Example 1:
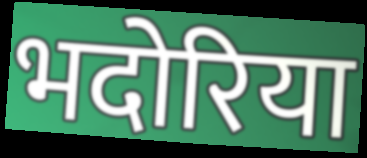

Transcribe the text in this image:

भदोरिया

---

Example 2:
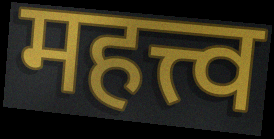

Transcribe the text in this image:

महत्त्व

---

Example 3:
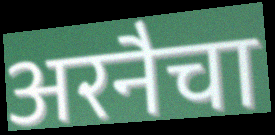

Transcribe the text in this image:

अरनैचा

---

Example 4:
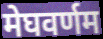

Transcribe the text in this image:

मेघवर्णम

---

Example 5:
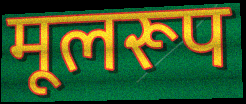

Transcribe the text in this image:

मूलरूप